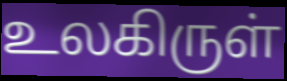
உலகிருள்